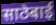
साठेबाई